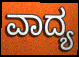
ವಾದ್ಯ